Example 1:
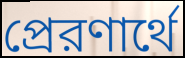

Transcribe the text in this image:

প্রেরণার্থে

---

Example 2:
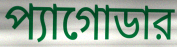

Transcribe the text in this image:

প্যাগোডার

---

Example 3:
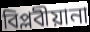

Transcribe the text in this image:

বিপ্লবীয়ানা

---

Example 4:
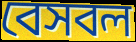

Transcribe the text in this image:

বেসবল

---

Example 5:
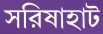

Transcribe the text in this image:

সরিষাহাট